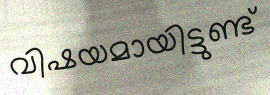
വിഷയമായിട്ടുണ്ട്